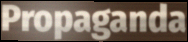
Propaganda